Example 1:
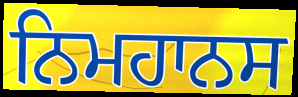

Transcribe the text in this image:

ਨਿਮਹਾਨਸ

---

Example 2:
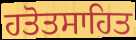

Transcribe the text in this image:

ਹਤੋਤਸਾਹਿਤ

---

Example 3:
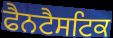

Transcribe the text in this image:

ਫੈਨਟੈਸਟਿਕ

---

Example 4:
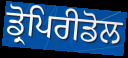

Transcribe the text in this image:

ਡ੍ਰੋਪਿਰੀਡੋਲ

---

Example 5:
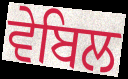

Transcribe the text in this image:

ਵੇਬਿਲ